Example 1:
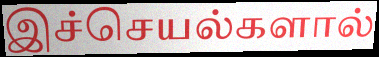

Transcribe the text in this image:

இச்செயல்களால்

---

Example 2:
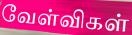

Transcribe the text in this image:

வேள்விகள்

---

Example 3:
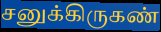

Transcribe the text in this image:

சனுக்கிருகண்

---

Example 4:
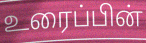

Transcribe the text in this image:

உரைப்பின்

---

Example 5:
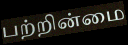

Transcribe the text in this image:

பற்றின்மை